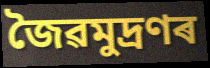
জৈৱমুদ্ৰণৰ